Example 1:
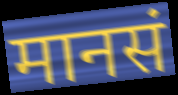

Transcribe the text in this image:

मानसं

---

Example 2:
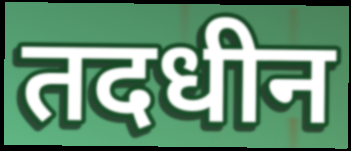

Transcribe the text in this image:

तदधीन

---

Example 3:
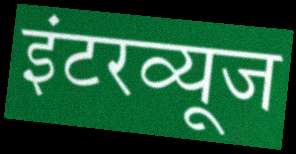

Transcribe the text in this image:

इंटरव्यूज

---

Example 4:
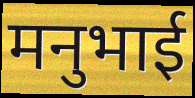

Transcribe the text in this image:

मनुभाई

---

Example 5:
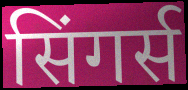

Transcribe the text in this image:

सिंगर्स